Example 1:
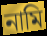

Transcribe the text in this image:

নামি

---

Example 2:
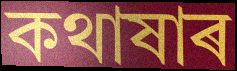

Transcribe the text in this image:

কথাষাৰ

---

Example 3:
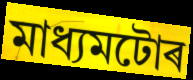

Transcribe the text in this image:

মাধ্যমটোৰ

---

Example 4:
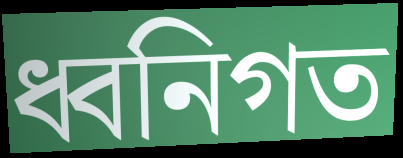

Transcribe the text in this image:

ধ্বনিগত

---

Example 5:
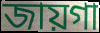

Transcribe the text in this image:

জায়গা